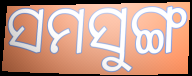
ସମସୁଙ୍ଗ